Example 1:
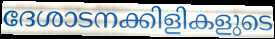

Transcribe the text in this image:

ദേശാടനക്കിളികളുടെ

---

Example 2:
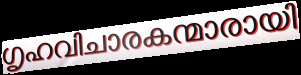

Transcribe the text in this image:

ഗൃഹവിചാരകന്മാരായി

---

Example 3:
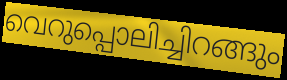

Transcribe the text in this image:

വെറുപ്പൊലിച്ചിറങ്ങും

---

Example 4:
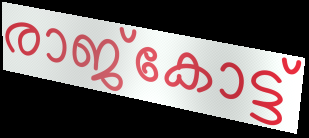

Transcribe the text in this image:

രാജ്കോട്ട്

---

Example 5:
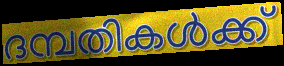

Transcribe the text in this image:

ദമ്പതികൾക്ക്